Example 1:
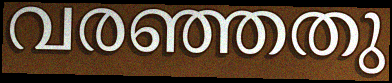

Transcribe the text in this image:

വരഞ്ഞതു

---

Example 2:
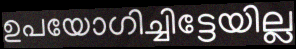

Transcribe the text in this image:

ഉപയോഗിച്ചിട്ടേയില്ല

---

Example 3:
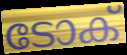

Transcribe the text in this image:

ടോക്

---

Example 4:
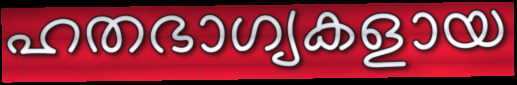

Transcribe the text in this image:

ഹതഭാഗ്യകളായ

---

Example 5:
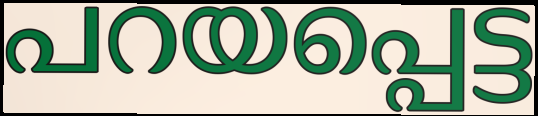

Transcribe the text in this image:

പറയപ്പെട്ട